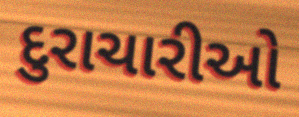
દુરાચારીઓ